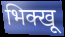
भिक्खू